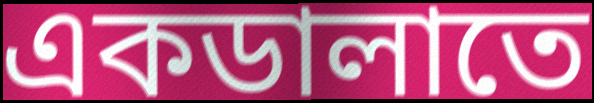
একডালাতে